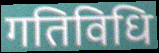
गतिविधि